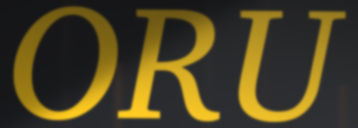
ORU